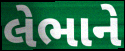
લેભાને